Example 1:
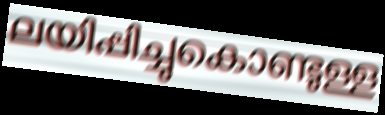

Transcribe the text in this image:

ലയിപ്പിച്ചുകൊണ്ടുള്ള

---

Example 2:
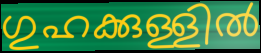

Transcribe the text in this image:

ഗുഹക്കുള്ളിൽ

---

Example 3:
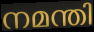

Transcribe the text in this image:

നമന്തി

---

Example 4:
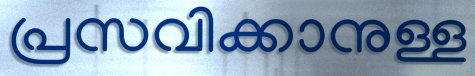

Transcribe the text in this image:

പ്രസവിക്കാനുള്ള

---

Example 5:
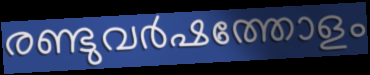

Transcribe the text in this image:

രണ്ടുവർഷത്തോളം